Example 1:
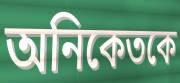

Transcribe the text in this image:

অনিকেতকে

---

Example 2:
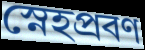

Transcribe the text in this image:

স্নেহপ্রবণ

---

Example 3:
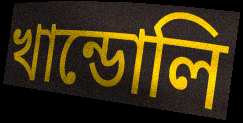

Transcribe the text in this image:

খান্ডোলি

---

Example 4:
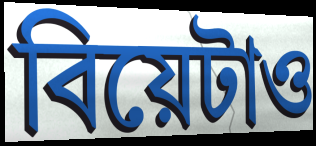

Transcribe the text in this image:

বিয়েটাও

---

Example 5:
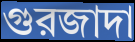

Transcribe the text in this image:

গুরজাদা